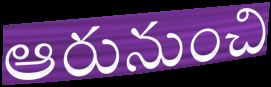
ఆరునుంచి